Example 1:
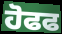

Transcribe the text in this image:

ਹੋਫਫ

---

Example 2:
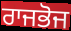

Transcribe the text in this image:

ਰਾਜਭੋਜ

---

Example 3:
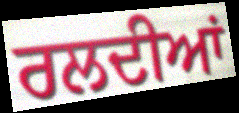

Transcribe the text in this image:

ਰਲਦੀਆਂ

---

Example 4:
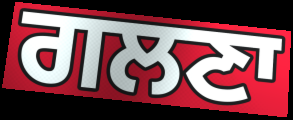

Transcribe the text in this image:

ਗਲਣਾ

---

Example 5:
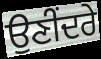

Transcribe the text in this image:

ਉਣੀਂਦਰੇ